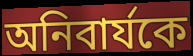
অনিবার্যকে